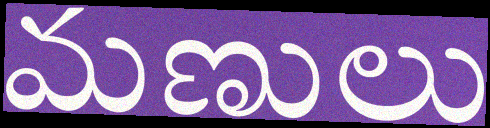
మణులు